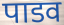
पाडव